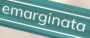
emarginata